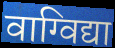
वाग्विद्या